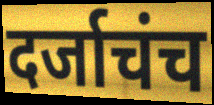
दर्जाचंच